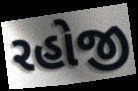
રહોજી